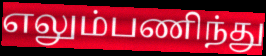
எலும்பணிந்து